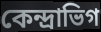
কেন্দ্রাভিগ